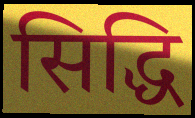
सिद्धि